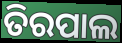
ତିରପାଲ